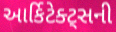
આર્કિટેક્ટ્સની